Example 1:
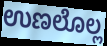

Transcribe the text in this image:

ಉಣಲೊಲ್ಲ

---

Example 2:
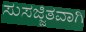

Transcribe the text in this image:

ಸುಸಜ್ಜಿತವಾಗಿ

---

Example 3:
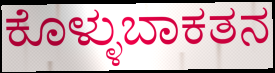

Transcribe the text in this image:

ಕೊಳ್ಳುಬಾಕತನ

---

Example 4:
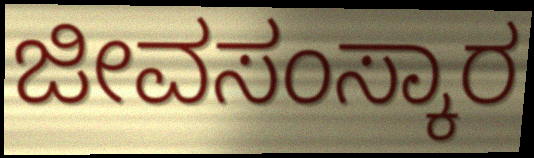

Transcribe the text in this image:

ಜೀವಸಂಸ್ಕಾರ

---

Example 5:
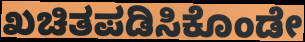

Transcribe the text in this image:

ಖಚಿತಪಡಿಸಿಕೊಂಡೇ